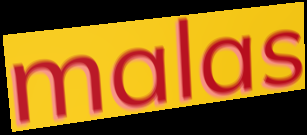
malas